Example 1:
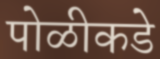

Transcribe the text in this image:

पोळीकडे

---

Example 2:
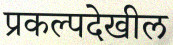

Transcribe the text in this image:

प्रकल्पदेखील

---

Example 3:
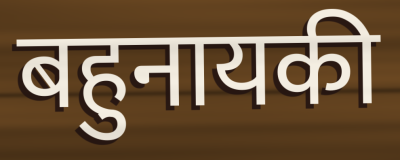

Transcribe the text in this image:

बहुनायकी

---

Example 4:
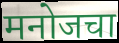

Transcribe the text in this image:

मनोजचा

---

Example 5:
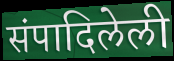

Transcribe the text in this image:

संपादिलेली